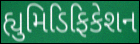
હ્યુમિડિફિકેશન